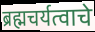
ब्रह्मचर्यत्वाचे